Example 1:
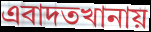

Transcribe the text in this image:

এবাদতখানায়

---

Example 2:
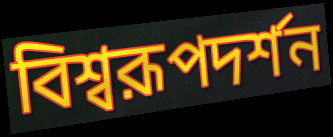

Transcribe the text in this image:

বিশ্বরূপদর্শন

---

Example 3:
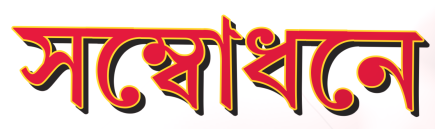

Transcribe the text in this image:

সম্বোধনে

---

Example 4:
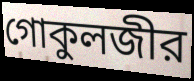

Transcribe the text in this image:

গোকুলজীর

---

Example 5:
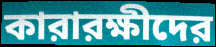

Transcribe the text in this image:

কারারক্ষীদের